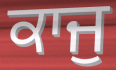
ਕਾਜੁ